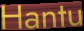
Hantu